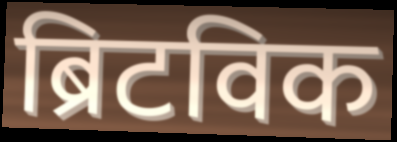
ब्रिटविक